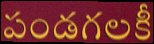
పండగలకీ